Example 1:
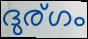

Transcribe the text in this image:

ദുര്ഗം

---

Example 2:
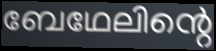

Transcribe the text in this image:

ബേഥേലിന്റെ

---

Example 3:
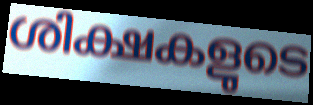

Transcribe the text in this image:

ശിക്ഷകളുടെ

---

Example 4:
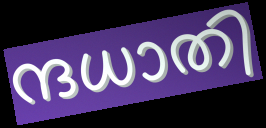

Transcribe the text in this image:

ന്ദധാതി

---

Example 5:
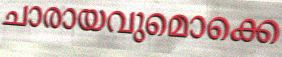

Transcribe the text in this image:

ചാരായവുമൊക്കെ